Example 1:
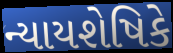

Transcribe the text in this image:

ન્યાયશેષિકે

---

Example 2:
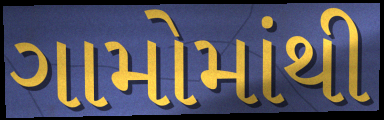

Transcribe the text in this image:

ગામોમાંથી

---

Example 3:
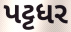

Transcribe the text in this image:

પટ્ટધર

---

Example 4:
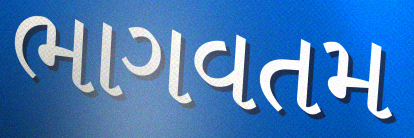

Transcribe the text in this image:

ભાગવતમ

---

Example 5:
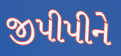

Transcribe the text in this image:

જીપીપીને